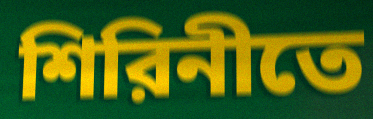
শিরিনীতে